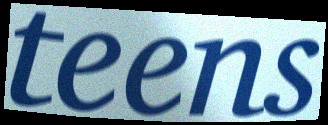
teens